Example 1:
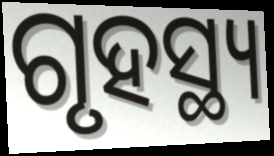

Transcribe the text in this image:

ଗୃହସ୍ଥ୍ୟ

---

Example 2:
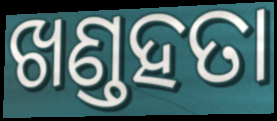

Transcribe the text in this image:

ଖଣ୍ଡହତା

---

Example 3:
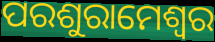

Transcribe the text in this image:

ପରଶୁରାମେଶ୍ୱର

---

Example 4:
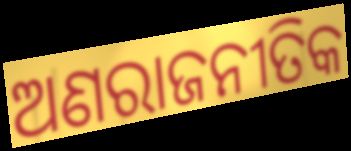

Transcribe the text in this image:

ଅଣରାଜନୀତିକ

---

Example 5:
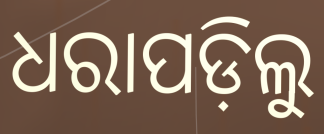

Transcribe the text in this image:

ଧରାପଡ଼ିଲୁ